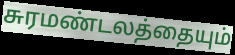
சுரமண்டலத்தையும்